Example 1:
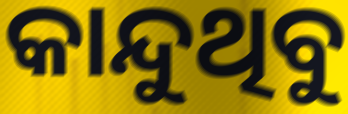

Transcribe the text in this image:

କାନ୍ଦୁଥିବୁ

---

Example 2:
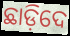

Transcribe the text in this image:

ଛାଡ଼ିଦେ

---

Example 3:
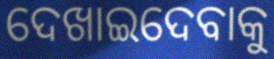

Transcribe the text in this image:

ଦେଖାଇଦେବାକୁ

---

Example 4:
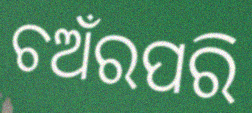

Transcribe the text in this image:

ଚଅଁରପରି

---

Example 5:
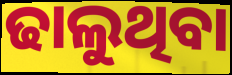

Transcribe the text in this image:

ଢାଲୁଥିବା